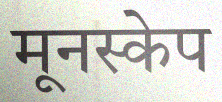
मूनस्केप